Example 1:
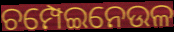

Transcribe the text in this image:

ଚମ୍ପେଇନେଉଳ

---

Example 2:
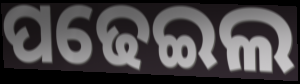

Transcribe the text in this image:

ପଢେଇଲ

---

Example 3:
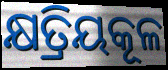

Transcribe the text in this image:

କ୍ଷତ୍ରିୟକୂଳ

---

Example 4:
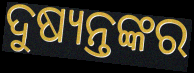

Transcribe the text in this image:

ଦୁଷ୍ୟନ୍ତଙ୍କର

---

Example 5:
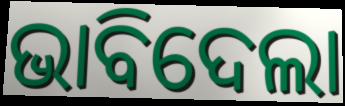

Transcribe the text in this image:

ଭାବିଦେଲା